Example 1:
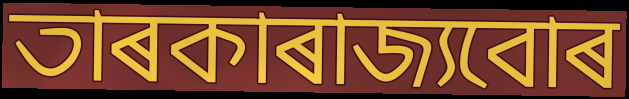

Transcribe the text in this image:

তাৰকাৰাজ্যবোৰ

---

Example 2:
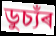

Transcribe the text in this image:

ডুচ্যঁৰ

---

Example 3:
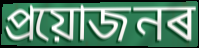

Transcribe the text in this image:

প্ৰয়োজনৰ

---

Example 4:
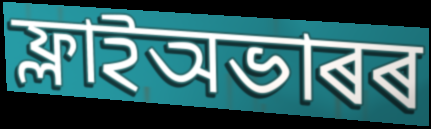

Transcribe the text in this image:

ফ্লাইঅভাৰৰ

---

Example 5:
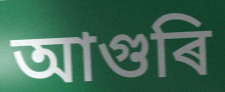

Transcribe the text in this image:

আগুৰি